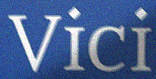
Vici